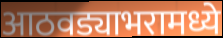
आठवड्याभरामध्ये